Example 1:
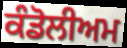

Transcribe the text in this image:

ਕੰਡੋਲੀਅਮ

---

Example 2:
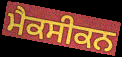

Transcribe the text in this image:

ਮੈਕਸੀਕਨ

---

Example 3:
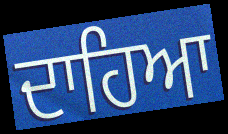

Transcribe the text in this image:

ਦਾਹਿਆ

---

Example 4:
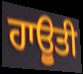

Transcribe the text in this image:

ਹਾਊਤੀ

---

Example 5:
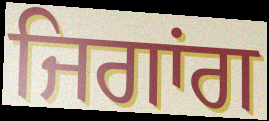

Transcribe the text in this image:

ਜਿਗਾਂਗ